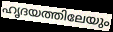
ഹൃദയത്തിലേയും